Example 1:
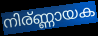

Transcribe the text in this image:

നിര്ണ്ണായക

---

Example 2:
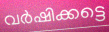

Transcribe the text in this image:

വർഷിക്കട്ടെ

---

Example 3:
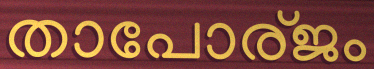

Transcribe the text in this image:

താപോര്ജം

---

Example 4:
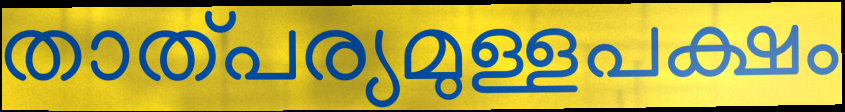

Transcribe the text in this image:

താത്പര്യമുള്ളപക്ഷം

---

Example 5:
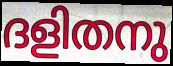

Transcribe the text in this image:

ദളിതനു